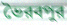
ভৈরবপুর